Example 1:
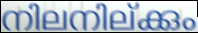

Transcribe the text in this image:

നിലനില്ക്കും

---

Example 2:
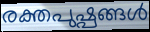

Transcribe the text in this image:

രക്തപുഷ്പങ്ങൾ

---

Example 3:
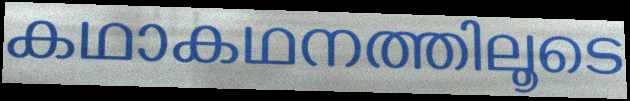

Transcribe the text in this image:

കഥാകഥനത്തിലൂടെ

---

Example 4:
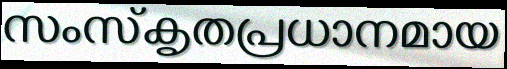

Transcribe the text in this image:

സംസ്‌കൃതപ്രധാനമായ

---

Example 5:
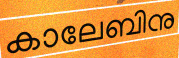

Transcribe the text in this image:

കാലേബിനു